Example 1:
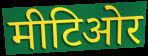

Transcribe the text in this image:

मीटिओर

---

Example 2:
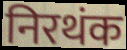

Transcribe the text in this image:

निरथंक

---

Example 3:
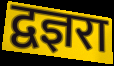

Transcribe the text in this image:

द्वज्ञरा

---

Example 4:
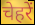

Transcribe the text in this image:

चेहरें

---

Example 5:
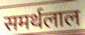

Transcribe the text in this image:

समर्थलाल